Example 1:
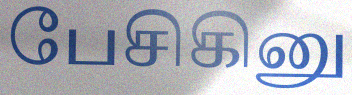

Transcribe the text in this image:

பேசிகினு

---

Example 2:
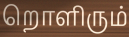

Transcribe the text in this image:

றொளிரும்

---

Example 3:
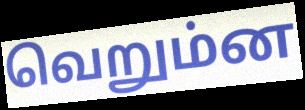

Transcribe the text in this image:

வெறும்ன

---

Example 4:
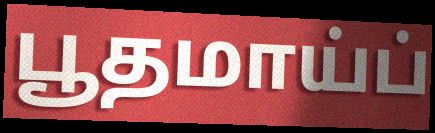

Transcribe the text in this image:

பூதமாய்ப்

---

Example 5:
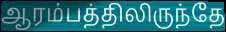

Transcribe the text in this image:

ஆரம்பத்திலிருந்தே